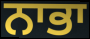
ਨਾਭਾ